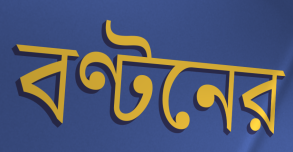
বণ্টনের